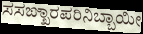
ಸಸಙ್ಖಾರಪರಿನಿಬ್ಬಾಯೀ